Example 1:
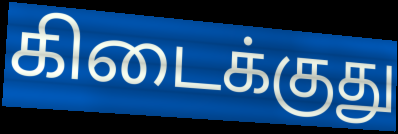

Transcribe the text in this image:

கிடைக்குது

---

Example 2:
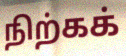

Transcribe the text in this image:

நிற்கக்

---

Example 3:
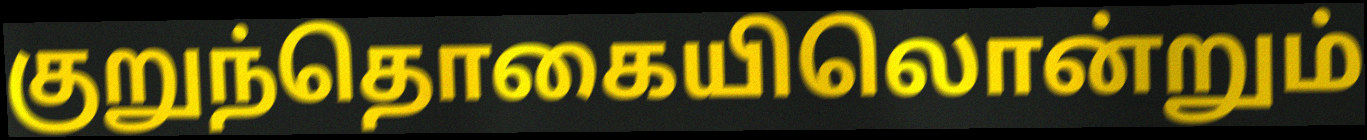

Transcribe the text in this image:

குறுந்தொகையிலொன்றும்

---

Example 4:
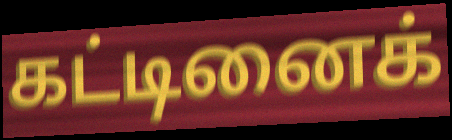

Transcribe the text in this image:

கட்டினைக்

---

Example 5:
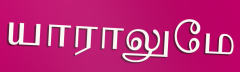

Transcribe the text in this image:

யாராலுமே